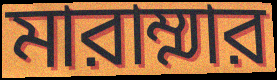
মারাম্মার